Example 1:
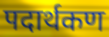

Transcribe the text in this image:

पदार्थकण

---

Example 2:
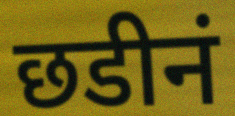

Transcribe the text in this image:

छडीनं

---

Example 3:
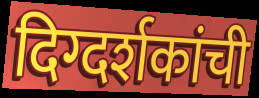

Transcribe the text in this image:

दिग्दर्शकांची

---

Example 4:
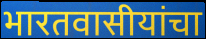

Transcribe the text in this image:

भारतवासीयांचा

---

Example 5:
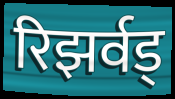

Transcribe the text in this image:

रिझर्वड्